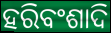
ହରିବଂଶାଦି